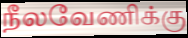
நீலவேணிக்கு